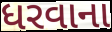
ધરવાના